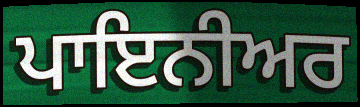
ਪਾਇਨੀਅਰ